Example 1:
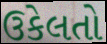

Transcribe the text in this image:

ઉકેલતો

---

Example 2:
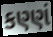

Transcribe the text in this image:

કણ્ણં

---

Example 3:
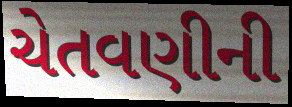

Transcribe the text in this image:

ચેતવણીની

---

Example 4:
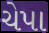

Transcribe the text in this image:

ચેપા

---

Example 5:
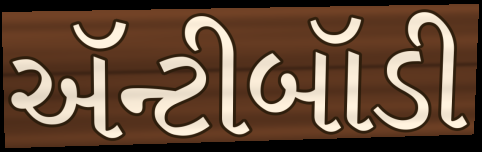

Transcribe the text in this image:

ઍન્ટીબૉડી